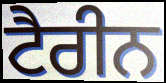
ਟੈਰੀਨ